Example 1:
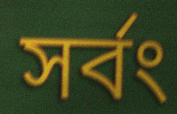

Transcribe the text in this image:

সর্বং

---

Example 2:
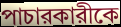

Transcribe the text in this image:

পাচারকারীকে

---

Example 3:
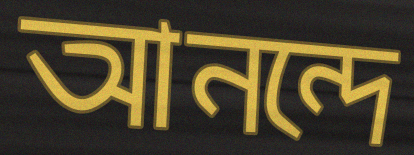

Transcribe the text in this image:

আনন্দে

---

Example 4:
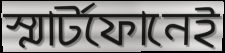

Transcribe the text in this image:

স্মার্টফোনেই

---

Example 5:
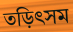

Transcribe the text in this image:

তড়িৎসম